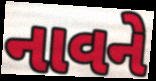
નાવને